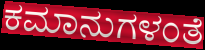
ಕಮಾನುಗಳಂತೆ